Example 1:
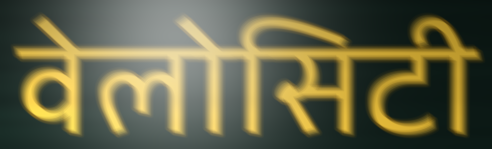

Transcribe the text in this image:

वेलोसिटी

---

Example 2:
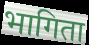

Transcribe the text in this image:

भागिता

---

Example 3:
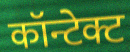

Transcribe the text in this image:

कॉन्टेक्ट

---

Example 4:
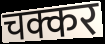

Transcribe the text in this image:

चक्कर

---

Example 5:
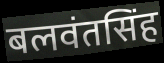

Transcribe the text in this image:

बलवंतसिंह